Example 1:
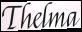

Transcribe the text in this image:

Thelma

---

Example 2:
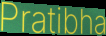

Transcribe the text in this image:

Pratibha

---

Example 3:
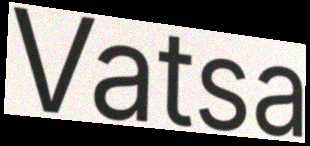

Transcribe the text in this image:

Vatsa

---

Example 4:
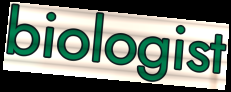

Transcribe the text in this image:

biologist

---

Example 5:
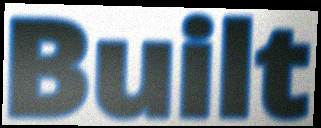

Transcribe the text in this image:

Built